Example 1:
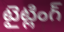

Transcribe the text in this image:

టైట్లింగ్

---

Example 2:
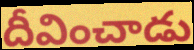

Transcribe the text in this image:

దీవించాడు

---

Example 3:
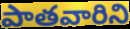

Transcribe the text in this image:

పాతవారిని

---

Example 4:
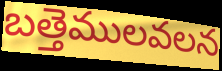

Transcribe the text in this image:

బత్తెములవలన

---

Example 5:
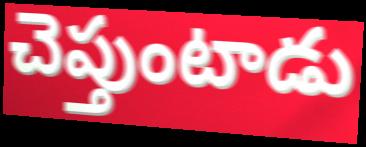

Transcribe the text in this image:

చెప్తుంటాడు